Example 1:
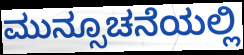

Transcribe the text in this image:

ಮುನ್ಸೂಚನೆಯಲ್ಲಿ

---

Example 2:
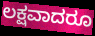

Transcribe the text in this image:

ಲಕ್ಷವಾದರೂ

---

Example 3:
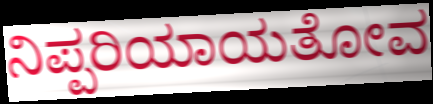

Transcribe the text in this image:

ನಿಪ್ಪರಿಯಾಯತೋವ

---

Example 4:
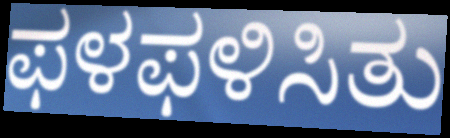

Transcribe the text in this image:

ಫಳಫಳಿಸಿತು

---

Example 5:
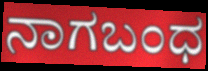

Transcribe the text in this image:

ನಾಗಬಂಧ